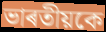
ভাৰতীয়কে